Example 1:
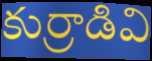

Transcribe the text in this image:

కుర్రాడివి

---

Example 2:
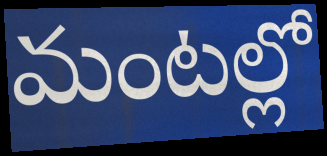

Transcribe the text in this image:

మంటల్లో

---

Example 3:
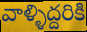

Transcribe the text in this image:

వాళ్ళిద్దరికి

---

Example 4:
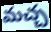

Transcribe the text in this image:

మచ్చ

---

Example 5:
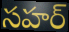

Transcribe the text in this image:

సహర్